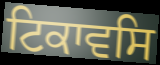
ਟਿਕਾਵਸਿ